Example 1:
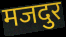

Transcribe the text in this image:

मजदुर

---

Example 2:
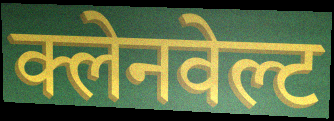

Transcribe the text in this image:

क्लेनवेल्ट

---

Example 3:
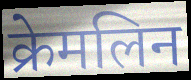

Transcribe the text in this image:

क्रेमलिन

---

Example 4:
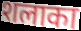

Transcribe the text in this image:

शलाका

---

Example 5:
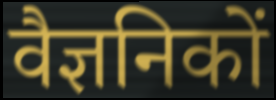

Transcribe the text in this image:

वैज्ञनिकों